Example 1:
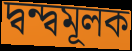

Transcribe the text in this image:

দ্বন্দ্বমূলক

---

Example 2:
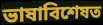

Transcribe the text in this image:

ভাষাবিশেষত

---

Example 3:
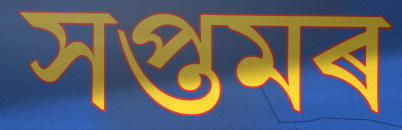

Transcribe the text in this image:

সপ্তমৰ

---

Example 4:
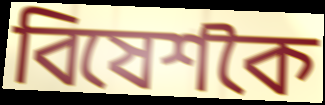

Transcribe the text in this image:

বিষেশকৈ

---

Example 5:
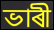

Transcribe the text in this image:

ভাৰী